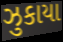
ઝુકાયા